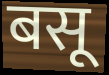
बसू